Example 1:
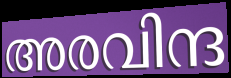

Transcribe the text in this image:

അരവിന്ദ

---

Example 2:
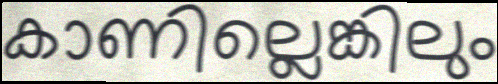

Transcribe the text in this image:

കാണില്ലെങ്കിലും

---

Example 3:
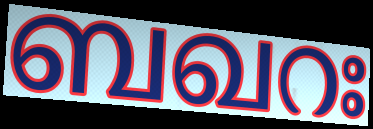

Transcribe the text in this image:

ബഖറഃ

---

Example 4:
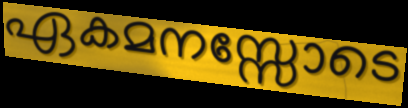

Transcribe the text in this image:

ഏകമനസ്സോടെ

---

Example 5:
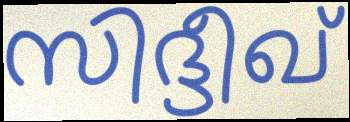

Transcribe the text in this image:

സിദ്ദീഖ്